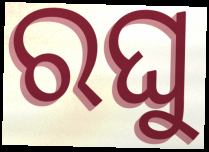
ରଘୁ